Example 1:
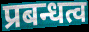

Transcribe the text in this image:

प्रबन्धत्व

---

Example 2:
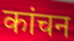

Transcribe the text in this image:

कांचन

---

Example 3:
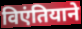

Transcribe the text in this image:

विएंतियाने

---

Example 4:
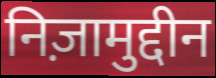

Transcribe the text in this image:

निज़ामुद्दीन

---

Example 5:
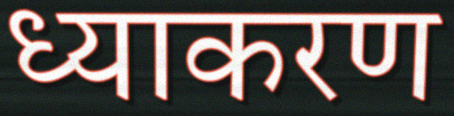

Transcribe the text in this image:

ध्याकरण